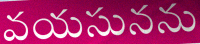
వయసునను